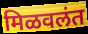
मिळवलंत